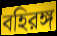
বহিরঙ্গ